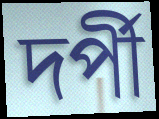
দর্পী